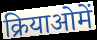
क्रियाओमें